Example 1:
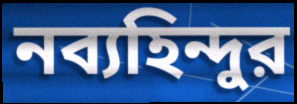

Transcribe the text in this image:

নব্যহিন্দুর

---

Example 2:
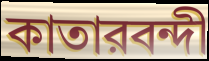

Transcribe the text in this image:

কাতারবন্দী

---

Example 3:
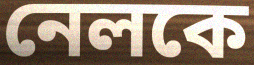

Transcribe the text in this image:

নেলকে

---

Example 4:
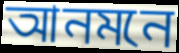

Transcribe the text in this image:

আনমনে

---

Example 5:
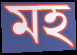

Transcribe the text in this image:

মহ